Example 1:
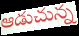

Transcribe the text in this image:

ఆడుచున్న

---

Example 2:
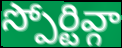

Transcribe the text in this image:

స్పోర్టివ్గా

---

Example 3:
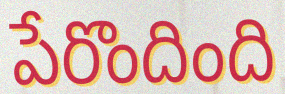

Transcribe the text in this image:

పేరొందింది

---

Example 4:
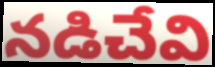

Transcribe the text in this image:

నడిచేవి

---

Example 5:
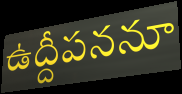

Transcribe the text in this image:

ఉద్దీపననూ